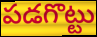
పడగొట్టు